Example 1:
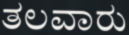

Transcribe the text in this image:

ತಲವಾರು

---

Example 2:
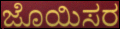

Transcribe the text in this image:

ಜೊಯಿಸರ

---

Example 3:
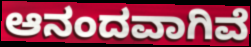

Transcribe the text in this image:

ಆನಂದವಾಗಿವೆ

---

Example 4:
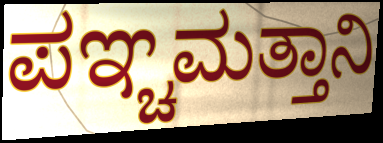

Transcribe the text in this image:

ಪಞ್ಚಮತ್ತಾನಿ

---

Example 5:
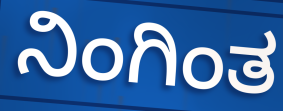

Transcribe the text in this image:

ನಿಂಗಿಂತ